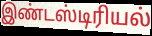
இண்டஸ்டிரியல்